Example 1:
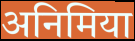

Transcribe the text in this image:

अनिमिया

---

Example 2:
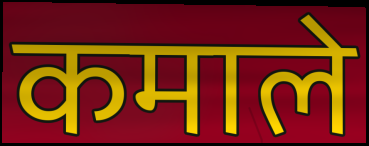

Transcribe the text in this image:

कमाले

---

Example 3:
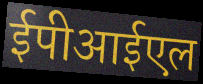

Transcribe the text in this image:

ईपीआईएल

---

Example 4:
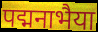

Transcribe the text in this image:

पद्मनाभैया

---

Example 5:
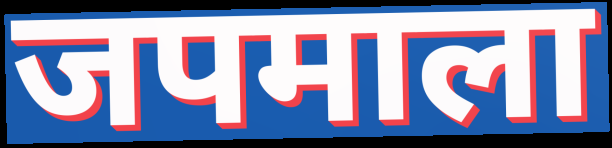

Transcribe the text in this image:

जपमाला